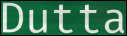
Dutta